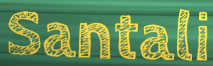
Santali